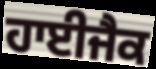
ਹਾਈਜੈਕ